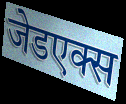
जेडएक्स